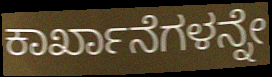
ಕಾರ್ಖಾನೆಗಳನ್ನೇ